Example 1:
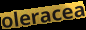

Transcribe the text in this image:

oleracea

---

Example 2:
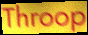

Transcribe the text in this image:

Throop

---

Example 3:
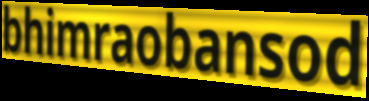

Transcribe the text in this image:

bhimraobansod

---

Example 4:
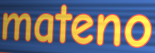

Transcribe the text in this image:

mateno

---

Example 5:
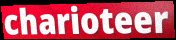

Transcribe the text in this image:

charioteer